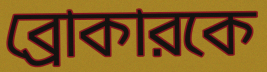
ব্রোকারকে